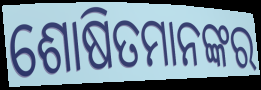
ଶୋଷିତମାନଙ୍କର